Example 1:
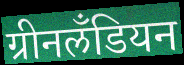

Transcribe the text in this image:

ग्रीनलॅंडियन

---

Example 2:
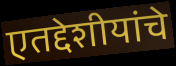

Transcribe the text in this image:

एतद्देशीयांचे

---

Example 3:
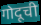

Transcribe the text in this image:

गोदूची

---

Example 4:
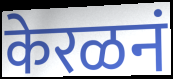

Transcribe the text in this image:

केरळनं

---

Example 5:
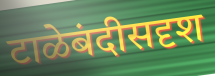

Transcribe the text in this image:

टाळेबंदीसदृश